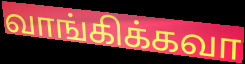
வாங்கிக்கவா